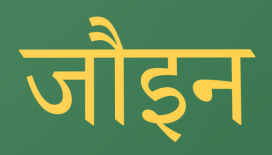
जौइन